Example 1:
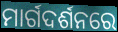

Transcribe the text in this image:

ମାର୍ଗଦର୍ଶନରେ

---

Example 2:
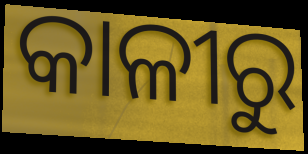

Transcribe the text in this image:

କାଳୀରୁ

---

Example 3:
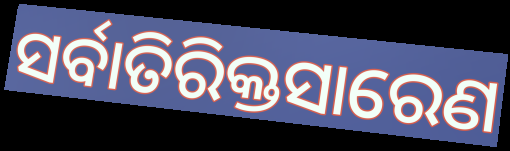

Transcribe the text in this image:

ସର୍ବାତିରିକ୍ତସାରେଣ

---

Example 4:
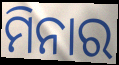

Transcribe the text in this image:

ମିନାର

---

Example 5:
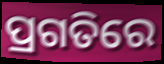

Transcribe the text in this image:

ପ୍ରଗତିରେ